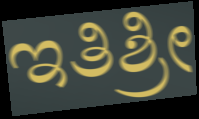
ಇತಿಶ್ರೀ